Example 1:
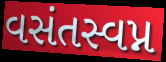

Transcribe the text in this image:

વસંતસ્વપ્ન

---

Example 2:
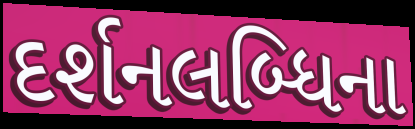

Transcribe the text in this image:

દર્શનલબ્ધિના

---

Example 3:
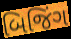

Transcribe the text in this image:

બિજિંગ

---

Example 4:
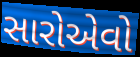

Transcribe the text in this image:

સારોએવો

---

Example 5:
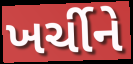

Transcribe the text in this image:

ખર્ચીને